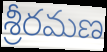
శ్రీరమణ